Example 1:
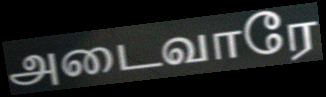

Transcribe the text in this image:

அடைவாரே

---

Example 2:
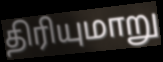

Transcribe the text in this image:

திரியுமாறு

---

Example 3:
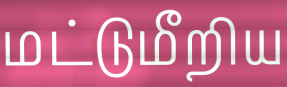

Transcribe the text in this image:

மட்டுமீறிய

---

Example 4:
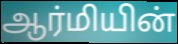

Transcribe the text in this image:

ஆர்மியின்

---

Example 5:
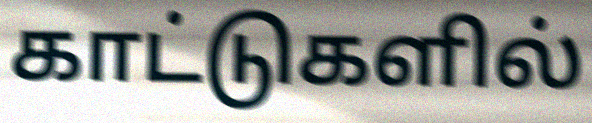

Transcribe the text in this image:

காட்டுகளில்